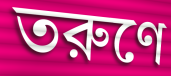
তরুণে